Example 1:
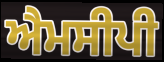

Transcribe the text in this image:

ਐਮਸੀਪੀ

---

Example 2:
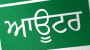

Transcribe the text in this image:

ਆਊਟਰ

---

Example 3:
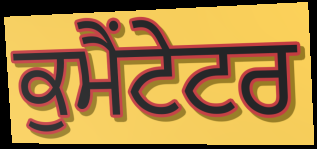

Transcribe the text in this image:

ਕੁਮੈਂਟੇਟਰ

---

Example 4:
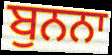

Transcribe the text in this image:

ਬੁਨਨਾ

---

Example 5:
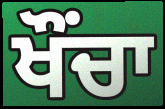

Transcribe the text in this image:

ਖੌੰਚਾ